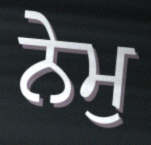
ਨੇਮੁ